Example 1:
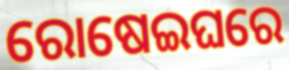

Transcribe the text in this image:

ରୋଷେଇଘରେ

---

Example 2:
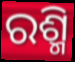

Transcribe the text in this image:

ରଶ୍ମି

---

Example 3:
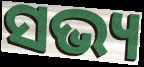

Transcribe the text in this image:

ସଭ୍ୟ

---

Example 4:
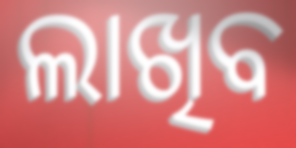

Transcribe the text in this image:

ଲାଖିବ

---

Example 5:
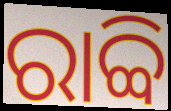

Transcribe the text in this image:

ରାବ୍ବି